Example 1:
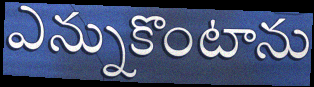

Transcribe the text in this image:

ఎన్నుకొంటాను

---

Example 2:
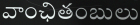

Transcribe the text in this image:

వాంఛితంబులు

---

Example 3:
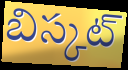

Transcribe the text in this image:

బిస్కట్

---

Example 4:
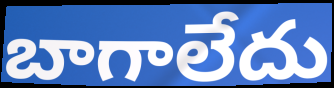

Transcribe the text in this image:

బాగాలేదు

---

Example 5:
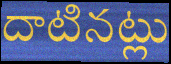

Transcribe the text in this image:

దాటినట్లు